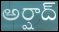
అర్షాద్